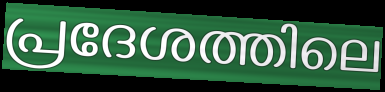
പ്രദേശത്തിലെ